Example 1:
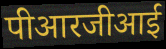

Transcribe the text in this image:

पीआरजीआई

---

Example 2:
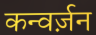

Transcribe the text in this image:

कन्वर्ज़न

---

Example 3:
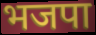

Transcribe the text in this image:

भजपा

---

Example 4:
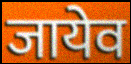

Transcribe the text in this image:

जायेव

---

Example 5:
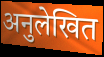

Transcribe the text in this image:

अनुलेखित